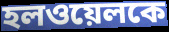
হলওয়েলকে